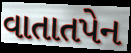
વાતાતપેન